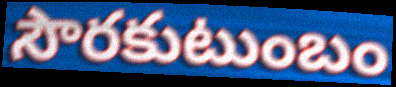
సౌరకుటుంబం